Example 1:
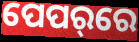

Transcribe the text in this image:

ପେପର୍‌ରେ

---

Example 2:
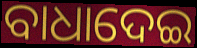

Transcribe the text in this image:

ବାଧାଦେଇ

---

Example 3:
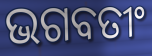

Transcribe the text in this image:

ଭଗବତୀଂ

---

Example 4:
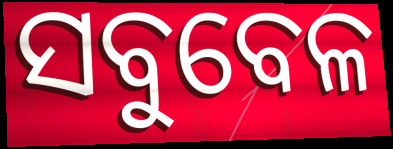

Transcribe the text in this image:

ସବୁବେଳ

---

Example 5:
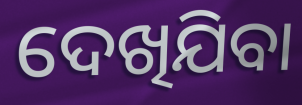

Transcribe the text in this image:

ଦେଖିଯିବା